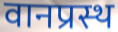
वानप्रस्थ